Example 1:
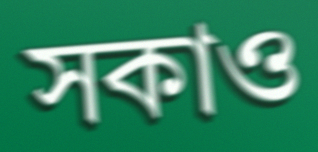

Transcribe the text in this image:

সকাও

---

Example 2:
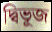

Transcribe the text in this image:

দ্বিভূজ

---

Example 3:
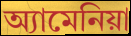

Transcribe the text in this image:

অ্যামেনিয়া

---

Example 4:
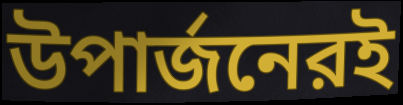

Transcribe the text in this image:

উপার্জনেরই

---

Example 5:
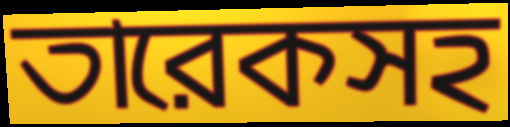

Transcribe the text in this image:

তারেকসহ